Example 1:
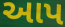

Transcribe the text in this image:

આપ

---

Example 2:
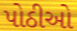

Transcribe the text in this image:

પોઠીઓ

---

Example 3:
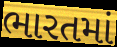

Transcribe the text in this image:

ભારતમાં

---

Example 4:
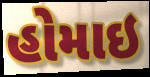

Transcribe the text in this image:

હોમાઇ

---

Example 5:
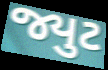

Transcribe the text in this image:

જ્યુટ